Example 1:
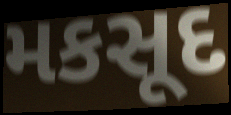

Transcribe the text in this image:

મકસૂદ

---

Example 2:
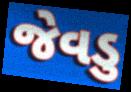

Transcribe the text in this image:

જેવડુ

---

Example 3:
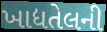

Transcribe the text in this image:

ખાદ્યતેલની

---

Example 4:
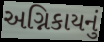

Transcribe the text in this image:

અગ્નિકાયનું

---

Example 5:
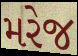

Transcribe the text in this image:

મરેજ